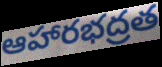
ఆహారభద్రత